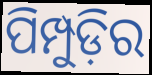
ପିମ୍ପୁଡ଼ିର